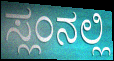
ಸ್ಲಂನಲ್ಲಿ